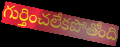
గుర్తించలేకపోతోంది